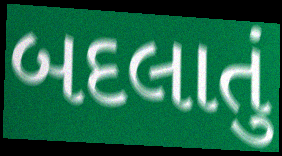
બદલાતું